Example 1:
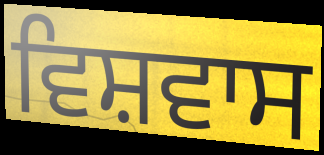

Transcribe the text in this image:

ਵਿਸ਼ਵਾਸ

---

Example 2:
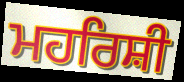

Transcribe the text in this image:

ਮਹਰਿਸ਼ੀ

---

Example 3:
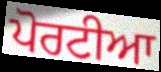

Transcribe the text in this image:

ਪੋਰਟੀਆ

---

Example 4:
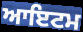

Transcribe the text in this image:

ਆਇਟਮ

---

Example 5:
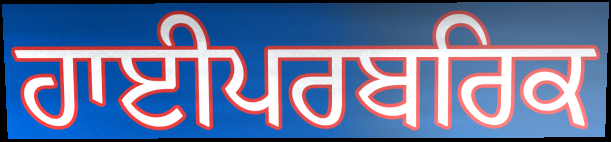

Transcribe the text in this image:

ਹਾਈਪਰਬਰਿਕ